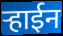
ऱ्हाईन